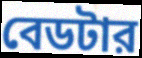
বেডটার